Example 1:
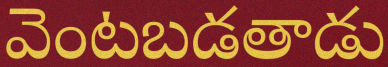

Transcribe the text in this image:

వెంటబడతాడు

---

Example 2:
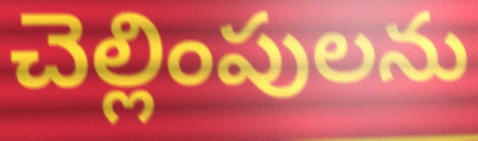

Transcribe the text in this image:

చెల్లింపులను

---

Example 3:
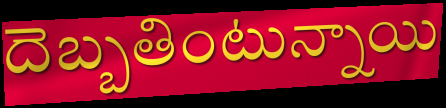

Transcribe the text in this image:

దెబ్బతింటున్నాయి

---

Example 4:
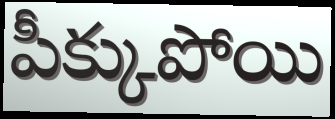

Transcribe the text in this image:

పీక్కుపోయి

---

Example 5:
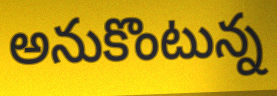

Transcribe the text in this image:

అనుకొంటున్న